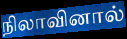
நிலாவினால்